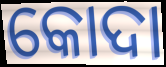
କୋଦା